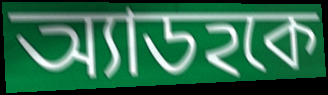
অ্যাডহকে